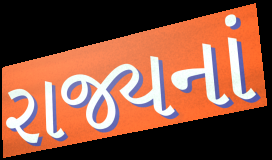
રાજ્યનાં